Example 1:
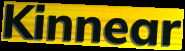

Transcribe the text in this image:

Kinnear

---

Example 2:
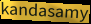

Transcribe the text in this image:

kandasamy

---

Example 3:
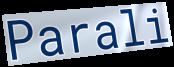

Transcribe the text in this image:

Parali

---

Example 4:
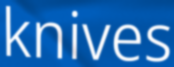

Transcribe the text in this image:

knives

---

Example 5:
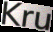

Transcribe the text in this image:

Kru